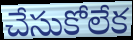
చేసుకోలేక